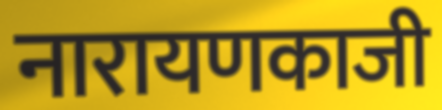
नारायणकाजी